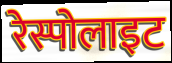
रेस्पोलाइट